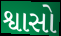
શ્વાસો